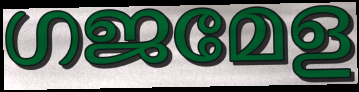
ഗജമേള